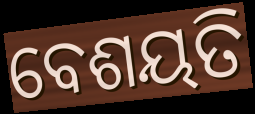
ବେଶୟତି